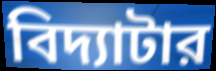
বিদ্যাটার